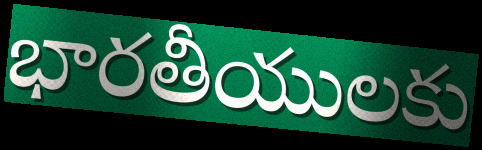
భారతీయులకు